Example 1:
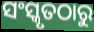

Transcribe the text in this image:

ସଂସ୍କୃତଠାରୁ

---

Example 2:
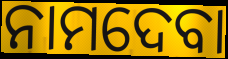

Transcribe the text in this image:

ନାମଦେବା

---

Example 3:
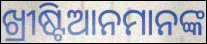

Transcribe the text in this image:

ଖ୍ରୀଷ୍ଟିଆନମାନଙ୍କ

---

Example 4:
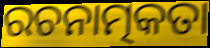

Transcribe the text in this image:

ରଚନାତ୍ମକତା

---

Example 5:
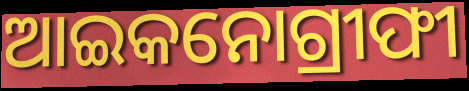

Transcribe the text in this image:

ଆଇକନୋଗ୍ରୀଫୀ